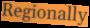
Regionally